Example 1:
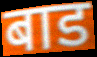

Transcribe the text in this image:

बाड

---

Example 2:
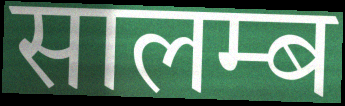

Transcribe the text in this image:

सालम्ब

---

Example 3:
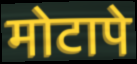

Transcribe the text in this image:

मोटापे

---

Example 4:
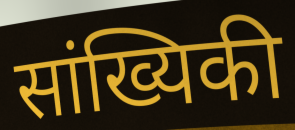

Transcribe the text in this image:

सांख्यिकी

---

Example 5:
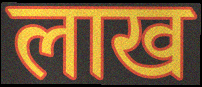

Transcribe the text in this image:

लाख